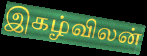
இகழ்விலன்